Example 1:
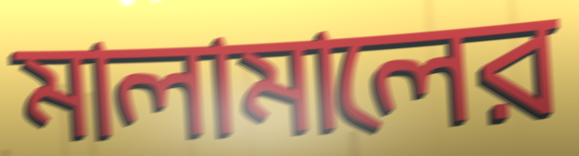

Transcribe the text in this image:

মালামালের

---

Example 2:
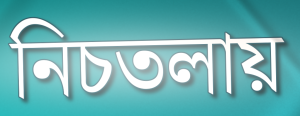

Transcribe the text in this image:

নিচতলায়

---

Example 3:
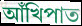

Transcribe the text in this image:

আঁখিপাত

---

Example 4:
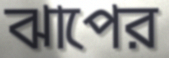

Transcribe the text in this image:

ঝাপের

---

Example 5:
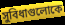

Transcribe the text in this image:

সুবিধাগুলোকে